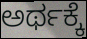
ಅರ್ಥಕ್ಕೆ